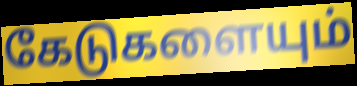
கேடுகளையும்